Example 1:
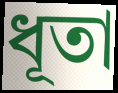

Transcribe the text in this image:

ধূতা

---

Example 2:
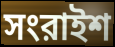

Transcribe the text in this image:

সংরাইশ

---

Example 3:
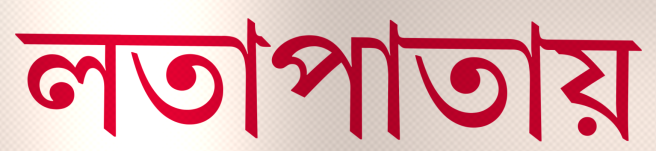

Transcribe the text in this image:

লতাপাতায়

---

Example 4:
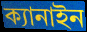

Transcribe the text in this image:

ক্যানাইন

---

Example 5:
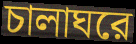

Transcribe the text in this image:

চালাঘরে